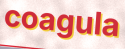
coagula